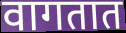
वागतात